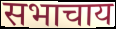
सभाचाय